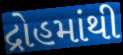
દ્રોહમાંથી